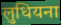
लुधियना